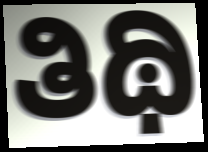
ತಿಥಿ